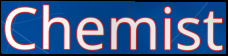
Chemist